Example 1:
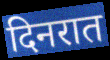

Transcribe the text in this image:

दिनरात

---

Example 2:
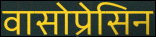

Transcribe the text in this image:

वासोप्रेसिन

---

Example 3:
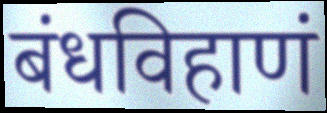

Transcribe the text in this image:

बंधविहाणं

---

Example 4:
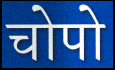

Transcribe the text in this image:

चोपो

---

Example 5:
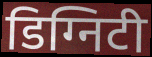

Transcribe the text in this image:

डिग्निटी